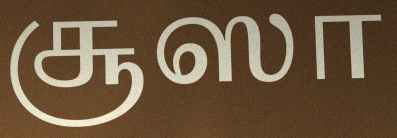
சூஸா